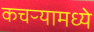
कचऱ्यामध्ये